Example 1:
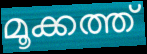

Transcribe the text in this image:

മൂക്കത്ത്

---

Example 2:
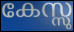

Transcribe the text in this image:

കേസ്സു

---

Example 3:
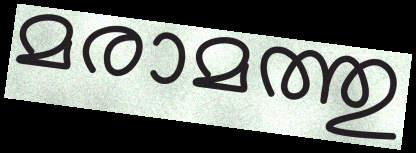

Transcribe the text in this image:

മരാമത്തു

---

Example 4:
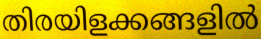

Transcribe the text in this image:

തിരയിളക്കങ്ങളിൽ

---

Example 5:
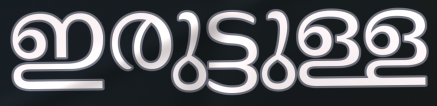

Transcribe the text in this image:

ഇരുട്ടുള്ള